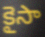
కైసా